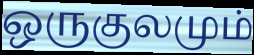
ஒருகுலமும்